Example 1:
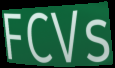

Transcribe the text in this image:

FCVs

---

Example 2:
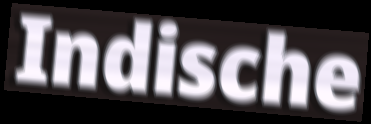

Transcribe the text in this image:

Indische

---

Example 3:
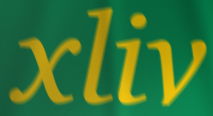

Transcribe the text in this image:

xliv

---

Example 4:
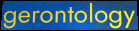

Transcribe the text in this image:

gerontology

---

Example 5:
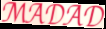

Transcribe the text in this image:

MADAD